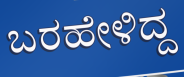
ಬರಹೇಳಿದ್ದ